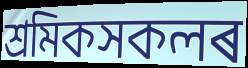
শ্ৰমিকসকলৰ